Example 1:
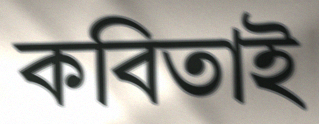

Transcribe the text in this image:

কবিতাই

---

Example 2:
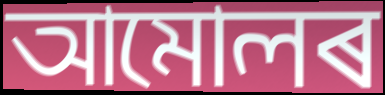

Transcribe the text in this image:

আমোলৰ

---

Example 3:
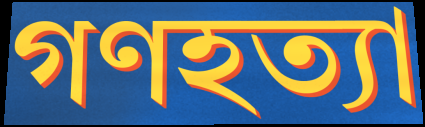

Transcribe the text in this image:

গণহত্যা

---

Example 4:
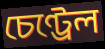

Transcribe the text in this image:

চেণ্ট্ৰেল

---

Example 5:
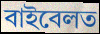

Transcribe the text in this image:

বাইবেলত